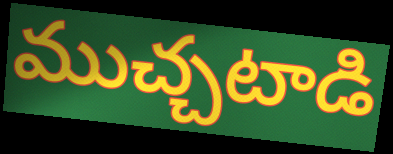
ముచ్చటాడి